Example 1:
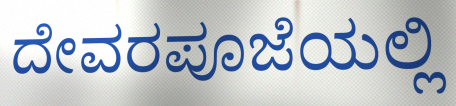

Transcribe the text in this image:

ದೇವರಪೂಜೆಯಲ್ಲಿ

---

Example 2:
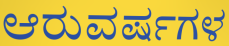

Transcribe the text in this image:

ಆರುವರ್ಷಗಳ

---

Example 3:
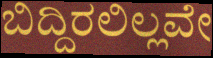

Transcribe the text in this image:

ಬಿದ್ದಿರಲಿಲ್ಲವೇ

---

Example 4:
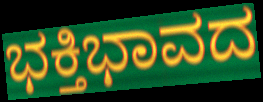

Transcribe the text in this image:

ಭಕ್ತಿಭಾವದ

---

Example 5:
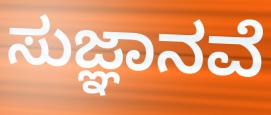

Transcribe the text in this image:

ಸುಜ್ಞಾನವೆ